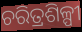
ଚରିତ୍ରଶିଳ୍ପୀ